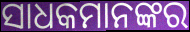
ସାଧକମାନଙ୍କର